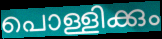
പൊള്ളിക്കും